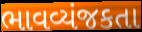
ભાવવ્યંજકતા